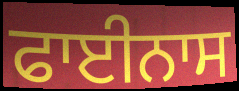
ਫਾਈਨਾਸ